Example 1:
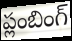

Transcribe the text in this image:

ప్లంబింగ్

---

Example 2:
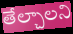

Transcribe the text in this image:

తేల్చాలని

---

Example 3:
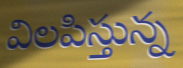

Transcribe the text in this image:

విలపిస్తున్న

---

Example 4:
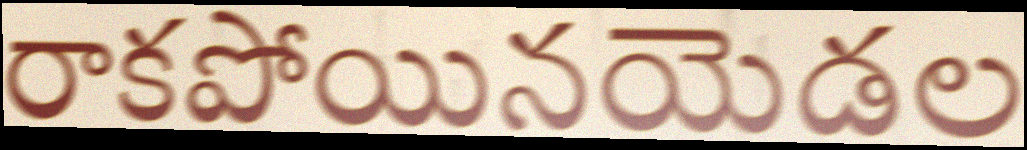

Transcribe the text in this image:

రాకపోయినయెడల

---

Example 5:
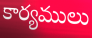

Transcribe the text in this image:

కార్యములు